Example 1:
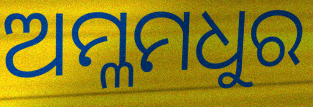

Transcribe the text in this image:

ଅମ୍ଳମଧୁର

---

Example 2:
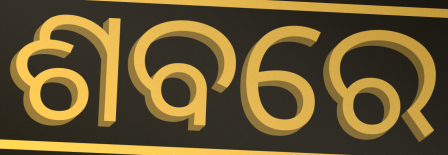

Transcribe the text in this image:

ଶବରେ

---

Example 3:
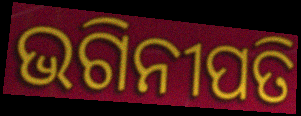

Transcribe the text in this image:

ଭଗିନୀପତି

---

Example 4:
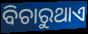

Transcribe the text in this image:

ବିଚାରୁଥାଏ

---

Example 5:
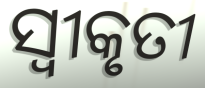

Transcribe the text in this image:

ସ୍ୱୀକୃତୀ